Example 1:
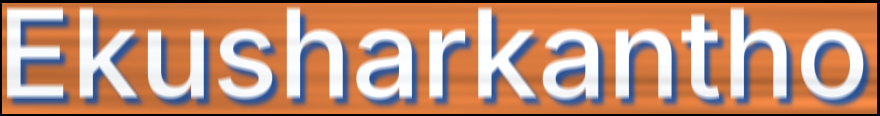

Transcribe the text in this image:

Ekusharkantho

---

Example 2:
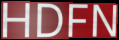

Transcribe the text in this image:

HDFN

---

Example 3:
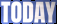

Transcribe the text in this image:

TODAY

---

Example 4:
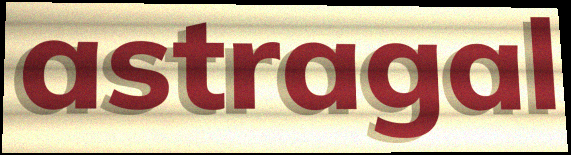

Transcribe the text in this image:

astragal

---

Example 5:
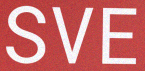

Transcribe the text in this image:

SVE